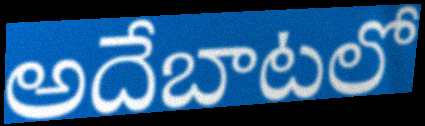
అదేబాటలో